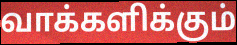
வாக்களிக்கும்